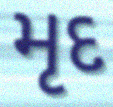
મૃદ